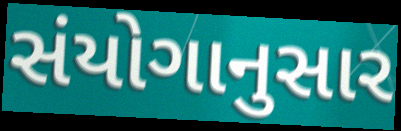
સંયોગાનુસાર